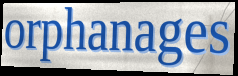
orphanages